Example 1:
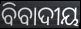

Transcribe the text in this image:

ବିବାଦୀୟ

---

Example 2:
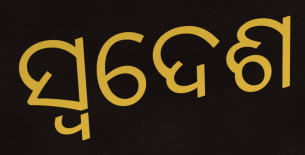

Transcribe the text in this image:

ସ୍ୱଦେଶ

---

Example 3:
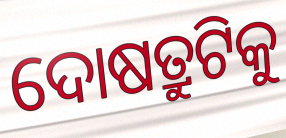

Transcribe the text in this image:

ଦୋଷତ୍ରୁଟିକୁ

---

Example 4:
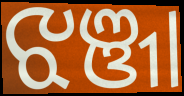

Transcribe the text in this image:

ଝଞ୍ଜା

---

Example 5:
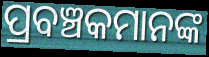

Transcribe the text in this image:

ପ୍ରବଞ୍ଚକମାନଙ୍କ